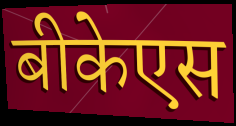
बीकेएस